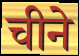
चीने